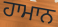
ਹਾਮਾਨ